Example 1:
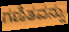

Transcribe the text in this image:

ಗಣಿತವನ್ನು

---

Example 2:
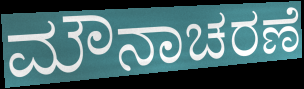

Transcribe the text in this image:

ಮೌನಾಚರಣೆ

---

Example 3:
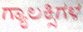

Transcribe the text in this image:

ಗ್ಯಾಲಕ್ಸಿಗಳ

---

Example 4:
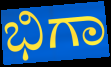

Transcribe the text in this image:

ಭಿಗಾ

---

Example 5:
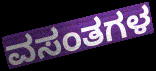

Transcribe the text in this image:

ವಸಂತಗಳ